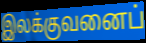
இலக்குவனைப்